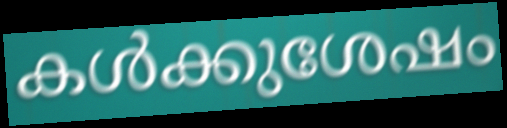
കൾക്കുശേഷം